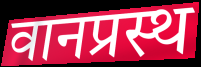
वानप्रस्थ